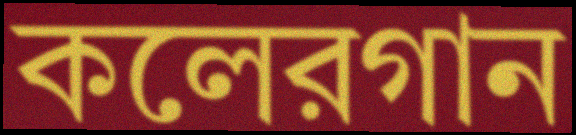
কলেরগান